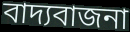
বাদ্যবাজনা